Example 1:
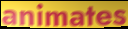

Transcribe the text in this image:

animates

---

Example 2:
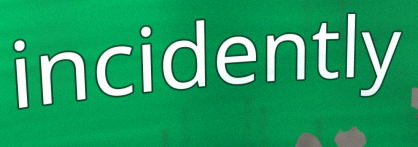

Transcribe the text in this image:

incidently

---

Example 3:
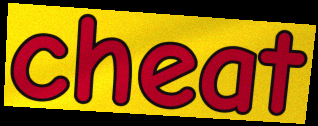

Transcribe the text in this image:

cheat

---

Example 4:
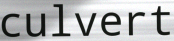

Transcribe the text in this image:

culvert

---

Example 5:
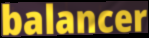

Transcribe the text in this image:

balancer